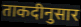
ताकदीनुसार